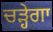
ਚੜ੍ਹੇਗਾ